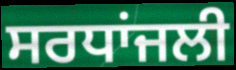
ਸਰਧਾਂਜਲੀ